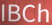
IBCh